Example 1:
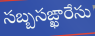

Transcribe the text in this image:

సబ్బసఙ్ఖారేసు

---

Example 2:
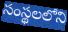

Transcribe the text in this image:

సంస్థలలోని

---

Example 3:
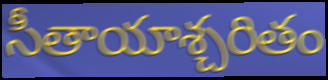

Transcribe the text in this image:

సీతాయాశ్చరితం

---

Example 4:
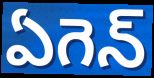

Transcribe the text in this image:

ఏగెన్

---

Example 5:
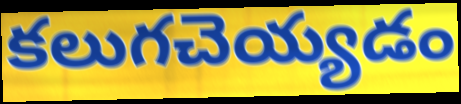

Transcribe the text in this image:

కలుగచెయ్యడం